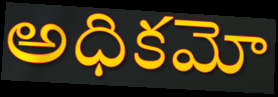
అధికమో